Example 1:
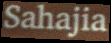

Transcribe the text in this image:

Sahajia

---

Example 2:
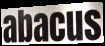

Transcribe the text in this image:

abacus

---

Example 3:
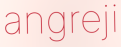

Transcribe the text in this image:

angreji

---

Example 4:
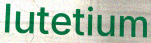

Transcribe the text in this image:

lutetium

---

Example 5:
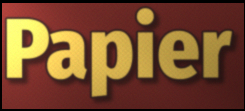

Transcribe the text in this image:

Papier